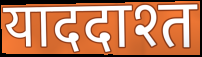
याददाश्त